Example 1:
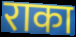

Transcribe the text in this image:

राका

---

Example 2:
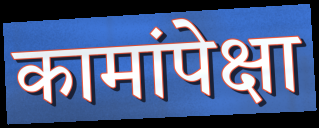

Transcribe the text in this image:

कामांपेक्षा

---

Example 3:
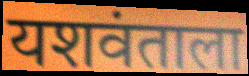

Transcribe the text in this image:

यशवंताला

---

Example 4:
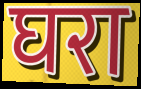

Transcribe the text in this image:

घरा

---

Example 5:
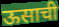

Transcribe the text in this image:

ऊसाची